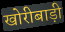
खोरीबाड़ी